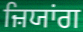
ਜ਼ਿਯਾਂਗ